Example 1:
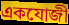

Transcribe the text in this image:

একযোজী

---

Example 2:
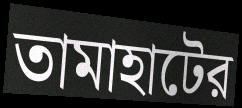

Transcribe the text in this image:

তামাহাটের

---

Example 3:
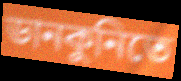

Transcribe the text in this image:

ডানকুনিতে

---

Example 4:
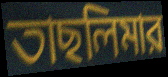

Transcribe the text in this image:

তাছলিমার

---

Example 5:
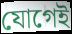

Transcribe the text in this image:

যোগেই